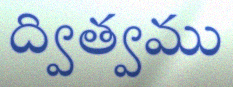
ద్విత్వము